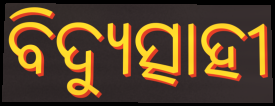
ବିଦ୍ୟୁତ୍ସାହୀ